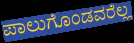
ಪಾಲುಗೊಂಡವರೆಲ್ಲ